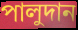
পালুদান